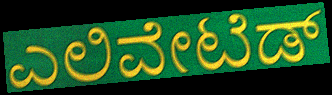
ಎಲಿವೇಟೆಡ್